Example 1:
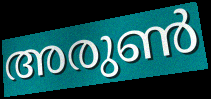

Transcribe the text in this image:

അരുൺ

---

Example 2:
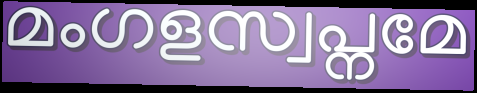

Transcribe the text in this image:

മംഗളസ്വപ്നമേ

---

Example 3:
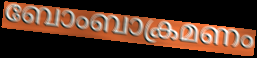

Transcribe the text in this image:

ബോംബാക്രമണം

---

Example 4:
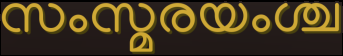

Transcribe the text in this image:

സംസ്മരയംശ്ച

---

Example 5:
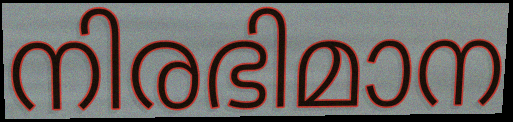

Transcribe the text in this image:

നിരഭിമാന